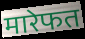
मारेफत